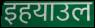
इहयाउल